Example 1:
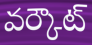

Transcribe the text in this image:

వర్కౌట్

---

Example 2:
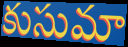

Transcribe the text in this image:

కుసుమా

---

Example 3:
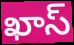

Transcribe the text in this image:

ఖాస్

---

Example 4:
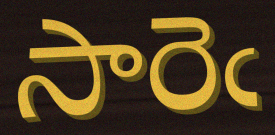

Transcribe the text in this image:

సారెఁ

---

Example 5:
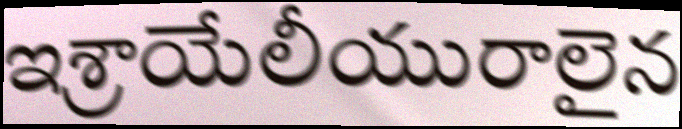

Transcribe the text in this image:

ఇశ్రాయేలీయురాలైన